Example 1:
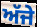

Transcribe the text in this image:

ਅੱਜੇ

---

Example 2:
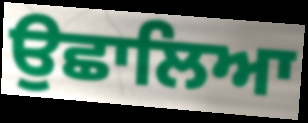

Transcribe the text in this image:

ਉਛਾਲਿਆ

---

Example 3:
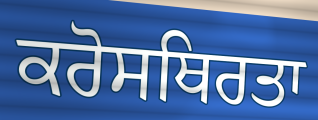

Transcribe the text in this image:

ਕਰੋਸਥਿਰਤਾ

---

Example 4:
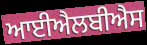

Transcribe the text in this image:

ਆਈਐਲਬੀਐਸ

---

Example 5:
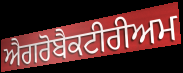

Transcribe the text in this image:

ਐਗਰੋਬੈਕਟੀਰੀਅਮ